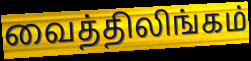
வைத்திலிங்கம்